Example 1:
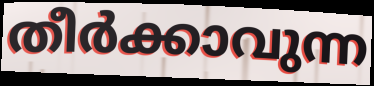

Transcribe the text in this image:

തീർക്കാവുന്ന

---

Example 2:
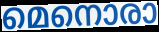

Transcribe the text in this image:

മെനൊരാ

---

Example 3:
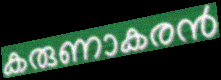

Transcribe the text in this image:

കരുണാകരൻ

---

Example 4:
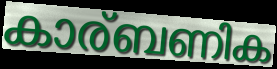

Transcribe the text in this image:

കാര്ബണിക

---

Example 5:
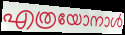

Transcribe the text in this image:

എത്രയോനാൾ